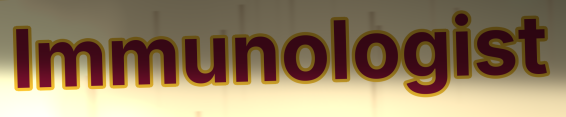
Immunologist